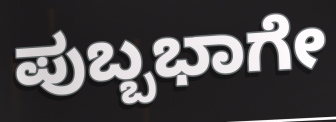
ಪುಬ್ಬಭಾಗೇ